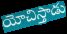
యోచిస్తాడు